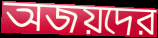
অজয়দের